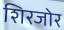
शिरजोर